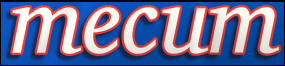
mecum